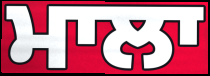
ਮਾਲਾ